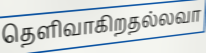
தெளிவாகிறதல்லவா